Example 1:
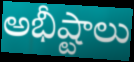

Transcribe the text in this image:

అభీష్టాలు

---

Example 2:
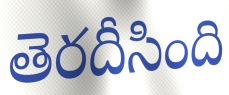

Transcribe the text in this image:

తెరదీసింది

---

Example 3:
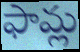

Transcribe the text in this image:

ఫామ్ల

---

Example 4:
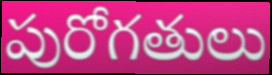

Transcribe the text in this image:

పురోగతులు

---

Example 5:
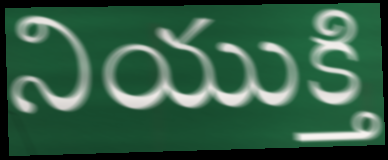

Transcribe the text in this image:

నియుక్తి